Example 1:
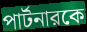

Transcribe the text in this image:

পার্টনারকে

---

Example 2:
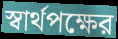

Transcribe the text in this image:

স্বার্থপক্ষের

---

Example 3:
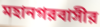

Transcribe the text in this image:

মহানগরবাসীর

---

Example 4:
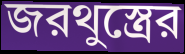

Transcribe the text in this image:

জরথুস্ত্রের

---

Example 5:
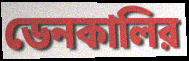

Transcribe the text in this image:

ডেনকালির